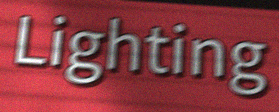
Lighting